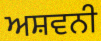
ਅਸ਼ਵਨੀ